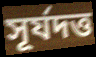
সূর্যদত্ত